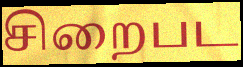
சிறைபட